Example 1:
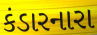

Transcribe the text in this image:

કંડારનારા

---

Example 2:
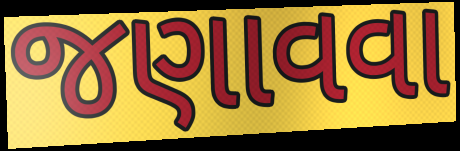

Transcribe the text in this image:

જણાવવા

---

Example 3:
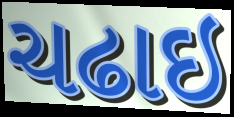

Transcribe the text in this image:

ચઢાઇ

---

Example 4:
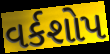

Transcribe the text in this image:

વર્કશોપ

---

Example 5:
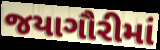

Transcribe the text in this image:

જયાગૌરીમાં